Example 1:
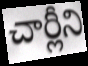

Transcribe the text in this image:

చార్లీని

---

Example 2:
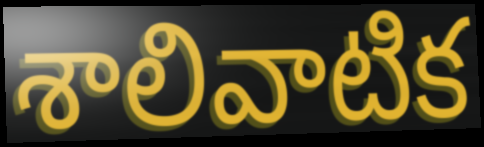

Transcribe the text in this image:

శాలివాటిక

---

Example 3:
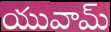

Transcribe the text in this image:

యువామ్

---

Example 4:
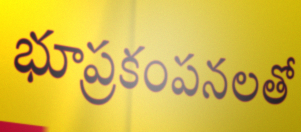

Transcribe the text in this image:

భూప్రకంపనలతో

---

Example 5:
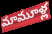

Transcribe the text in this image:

మామూళ్ల